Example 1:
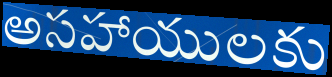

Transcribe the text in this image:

అసహాయులకు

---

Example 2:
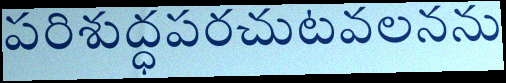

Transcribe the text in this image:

పరిశుద్ధపరచుటవలనను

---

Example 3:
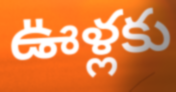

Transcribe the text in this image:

ఊళ్లకు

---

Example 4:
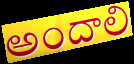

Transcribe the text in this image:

అందాలి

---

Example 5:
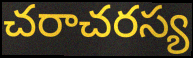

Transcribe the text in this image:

చరాచరస్య